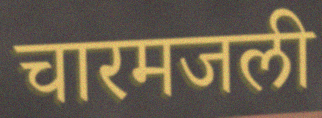
चारमजली